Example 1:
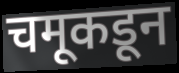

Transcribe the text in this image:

चमूकडून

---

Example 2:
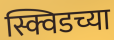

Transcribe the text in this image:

स्क्विडच्या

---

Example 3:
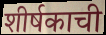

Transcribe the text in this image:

शीर्षकाची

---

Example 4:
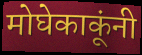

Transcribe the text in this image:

मोघेकाकूंनी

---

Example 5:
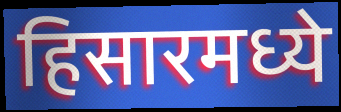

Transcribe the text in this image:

हिसारमध्ये